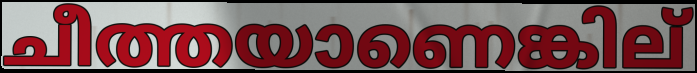
ചീത്തയാണെങ്കില്